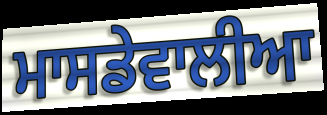
ਮਾਸਡੇਵਾਲੀਆ